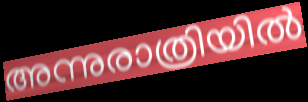
അന്നുരാത്രിയിൽ